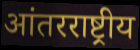
आंतरराष्ट्रीय